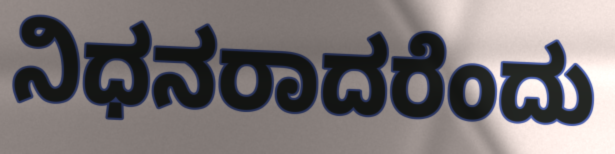
ನಿಧನರಾದರೆಂದು